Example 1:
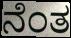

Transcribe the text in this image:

ನೆಂತ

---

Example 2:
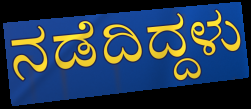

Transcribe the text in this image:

ನಡೆದಿದ್ದಳು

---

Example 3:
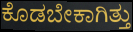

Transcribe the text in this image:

ಕೊಡಬೇಕಾಗಿತ್ತು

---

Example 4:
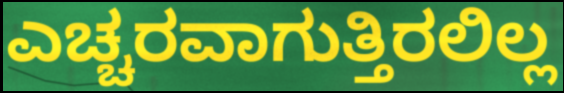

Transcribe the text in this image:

ಎಚ್ಚರವಾಗುತ್ತಿರಲಿಲ್ಲ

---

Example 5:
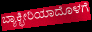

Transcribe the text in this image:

ಬ್ಯಾಕ್ಟೀರಿಯಾದೊಳಗೆ